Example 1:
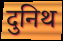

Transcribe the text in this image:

दुनिथ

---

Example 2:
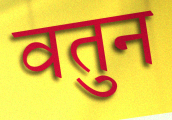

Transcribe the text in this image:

वतुन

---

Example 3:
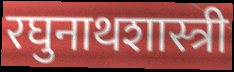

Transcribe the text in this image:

रघुनाथशास्त्री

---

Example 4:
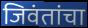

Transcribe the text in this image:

जिवंतांचा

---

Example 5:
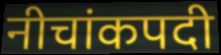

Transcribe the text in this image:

नीचांकपदी